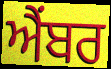
ਐਂਬਰ